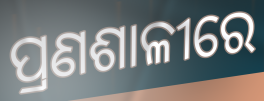
ପ୍ରଣଶାଳୀରେ